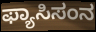
ಫ್ಯಾಸಿಸಂನ